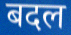
बदल